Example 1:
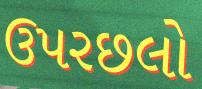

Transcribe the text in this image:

ઉપરછલો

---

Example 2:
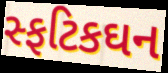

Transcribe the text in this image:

સ્ફટિકઘન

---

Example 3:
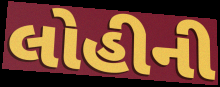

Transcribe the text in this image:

લોહીની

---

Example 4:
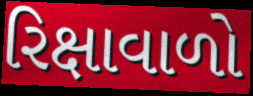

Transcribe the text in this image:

રિક્ષાવાળો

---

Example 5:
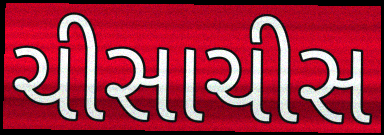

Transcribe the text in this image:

ચીસાચીસ